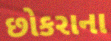
છોકરાના